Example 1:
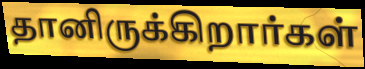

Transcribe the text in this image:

தானிருக்கிறார்கள்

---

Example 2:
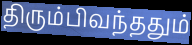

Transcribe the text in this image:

திரும்பிவந்ததும்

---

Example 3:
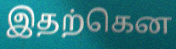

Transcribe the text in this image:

இதற்கென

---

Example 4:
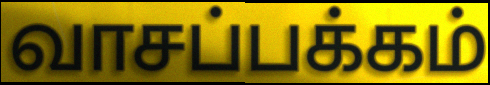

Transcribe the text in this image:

வாசப்பக்கம்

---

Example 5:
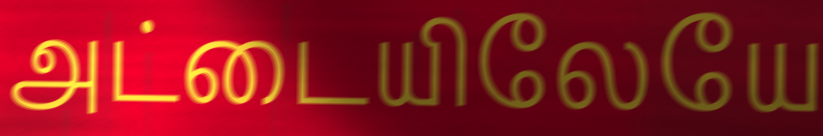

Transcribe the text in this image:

அட்டையிலேயே